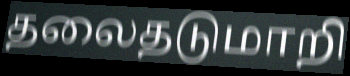
தலைதடுமாறி